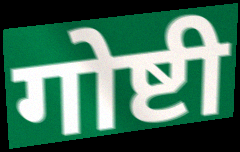
गोष्टी